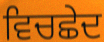
ਵਿਚਛੇਦ